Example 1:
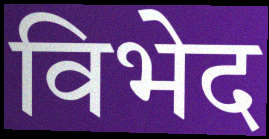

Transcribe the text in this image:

विभेद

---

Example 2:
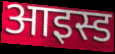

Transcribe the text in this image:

आइस्ड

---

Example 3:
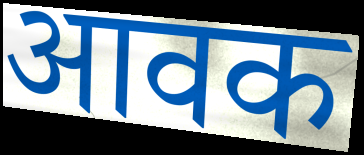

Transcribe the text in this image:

आवक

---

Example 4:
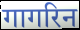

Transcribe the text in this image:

गागरिन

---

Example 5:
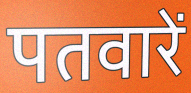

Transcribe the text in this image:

पतवारें